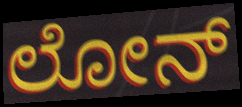
ಲೋನ್